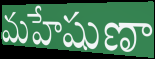
మహేషుణా